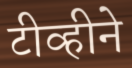
टीव्हीने